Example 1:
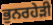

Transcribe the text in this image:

ਭੁਨਰਹੇੜੀ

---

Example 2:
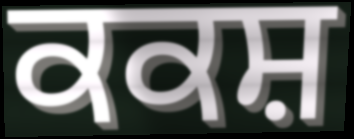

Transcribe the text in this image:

ਕਕਸ਼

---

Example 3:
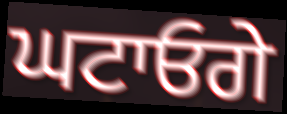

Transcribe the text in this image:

ਘਟਾਓਗੇ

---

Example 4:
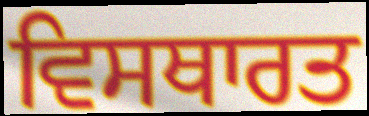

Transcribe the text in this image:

ਵਿਸਥਾਰਤ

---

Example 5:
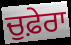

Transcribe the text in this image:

ਚੁਫ਼ੇਰਾ